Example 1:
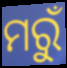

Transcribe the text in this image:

ମରୁଁ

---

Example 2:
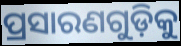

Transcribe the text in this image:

ପ୍ରସାରଣଗୁଡ଼ିକୁ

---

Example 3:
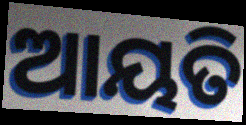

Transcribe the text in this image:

ଆୟତି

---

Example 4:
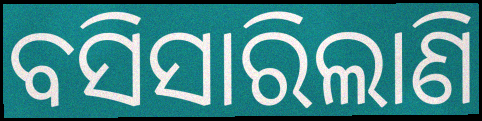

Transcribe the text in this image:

ବସିସାରିଲାଣି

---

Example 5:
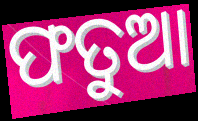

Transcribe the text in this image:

ଫତୁଆ